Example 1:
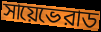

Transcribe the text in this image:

সায়েভেরাড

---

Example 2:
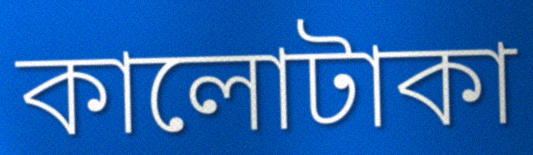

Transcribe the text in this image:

কালোটাকা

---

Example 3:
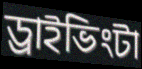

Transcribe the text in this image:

ড্রাইভিংটা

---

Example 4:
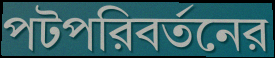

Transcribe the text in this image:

পটপরিবর্তনের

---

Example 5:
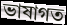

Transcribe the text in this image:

ভাষাগত